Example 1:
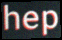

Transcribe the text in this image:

hep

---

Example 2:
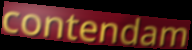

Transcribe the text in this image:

contendam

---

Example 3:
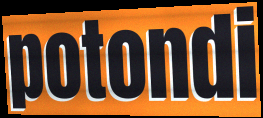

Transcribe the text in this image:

potondi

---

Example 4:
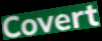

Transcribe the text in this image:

Covert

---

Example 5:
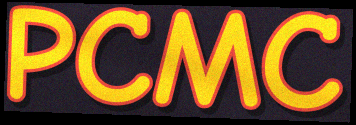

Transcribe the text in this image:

PCMC